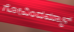
ಗೋವಿಂದಮ್ಮಾಳ್